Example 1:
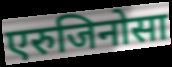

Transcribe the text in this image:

एरुजिनोसा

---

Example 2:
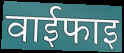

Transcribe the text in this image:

वाईफाइ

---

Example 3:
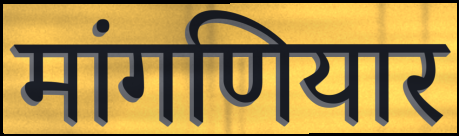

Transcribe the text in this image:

मांगणियार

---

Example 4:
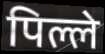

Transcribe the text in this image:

पिल्ले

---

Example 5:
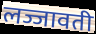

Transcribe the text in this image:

लज्जावती